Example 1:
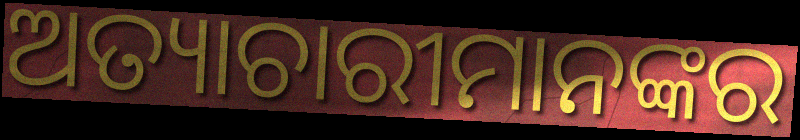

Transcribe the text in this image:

ଅତ୍ୟାଚାରୀମାନଙ୍କର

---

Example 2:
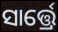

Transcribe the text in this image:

ସାର୍ତ୍ତ୍ରେ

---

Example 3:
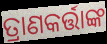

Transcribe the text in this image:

ତ୍ରାଣକର୍ତ୍ତାଙ୍କ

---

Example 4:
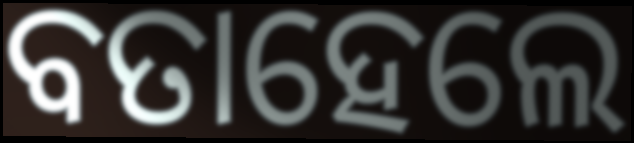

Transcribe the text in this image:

ବତାହେଲେ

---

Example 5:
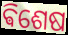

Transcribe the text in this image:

ଵିଶେଷ